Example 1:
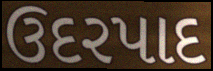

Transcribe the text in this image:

ઉદરપાદ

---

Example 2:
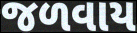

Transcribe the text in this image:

જળવાય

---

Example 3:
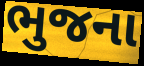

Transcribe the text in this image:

ભુજના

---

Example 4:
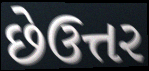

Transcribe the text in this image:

છેઉત્તર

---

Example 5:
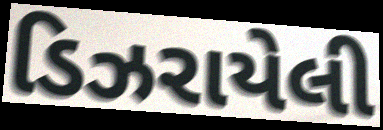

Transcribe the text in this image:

ડિઝરાયેલી